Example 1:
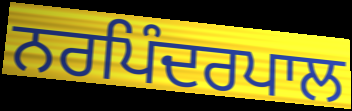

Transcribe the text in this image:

ਨਰਪਿੰਦਰਪਾਲ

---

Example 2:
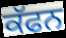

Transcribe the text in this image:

ਕੱਫਨ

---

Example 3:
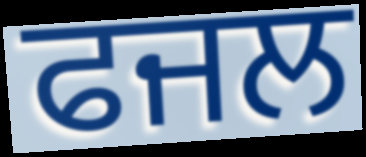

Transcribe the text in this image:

ਫਜਲ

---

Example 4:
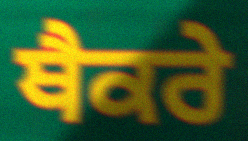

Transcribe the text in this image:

ਥੈਕਰੇ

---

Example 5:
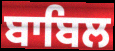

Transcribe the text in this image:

ਬਾਬਿਲ